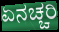
ಏನಚ್ಚರಿ